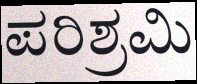
ಪರಿಶ್ರಮಿ